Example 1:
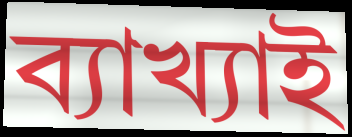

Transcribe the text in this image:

ব্যাখ্যাই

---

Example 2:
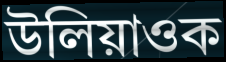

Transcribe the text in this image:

উলিয়াওক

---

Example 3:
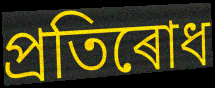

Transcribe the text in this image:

প্ৰতিৰোধ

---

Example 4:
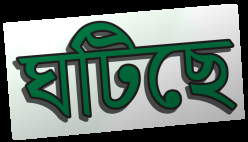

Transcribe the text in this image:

ঘটিছে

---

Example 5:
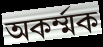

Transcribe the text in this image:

অকৰ্ম্মক